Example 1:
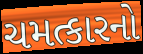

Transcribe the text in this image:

ચમત્કારનો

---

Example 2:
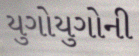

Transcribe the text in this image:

યુગોયુગોની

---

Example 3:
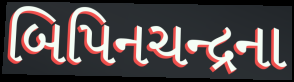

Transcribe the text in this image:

બિપિનચન્દ્રના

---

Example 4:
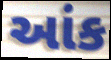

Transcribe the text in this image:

આંક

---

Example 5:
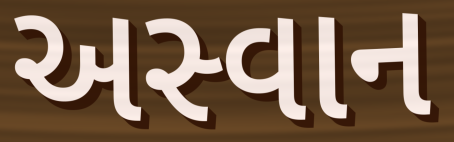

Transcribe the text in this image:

અસ્વાન